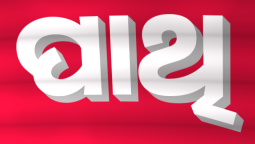
ପାଥି